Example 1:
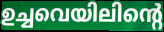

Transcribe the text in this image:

ഉച്ചവെയിലിന്റെ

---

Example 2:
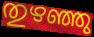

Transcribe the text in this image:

തുഴഞ്ഞു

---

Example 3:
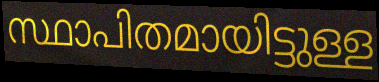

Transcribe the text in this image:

സ്ഥാപിതമായിട്ടുള്ള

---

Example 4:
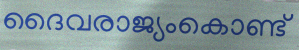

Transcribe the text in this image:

ദൈവരാജ്യംകൊണ്ട്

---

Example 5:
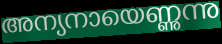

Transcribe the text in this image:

അന്യനായെണ്ണുന്നു